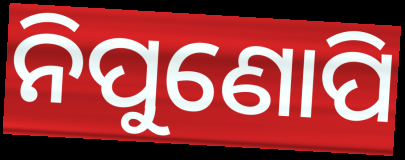
ନିପୁଣୋପି